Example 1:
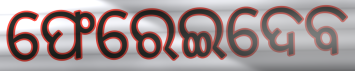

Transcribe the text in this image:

ଫେରେଇଦେବ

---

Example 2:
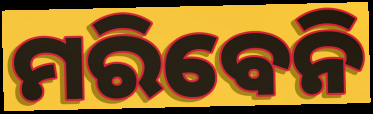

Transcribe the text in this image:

ମରିବେନି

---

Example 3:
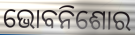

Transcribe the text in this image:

ଭୋବନିଶୋର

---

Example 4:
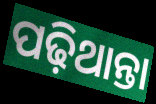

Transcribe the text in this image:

ପଢ଼ିଥାନ୍ତା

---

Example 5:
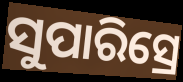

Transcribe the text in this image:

ସୁପାରିସ୍ରେ